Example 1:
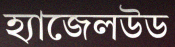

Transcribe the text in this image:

হ্যাজেলউড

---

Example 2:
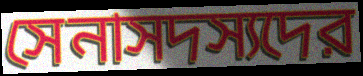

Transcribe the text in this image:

সেনাসদস্যদের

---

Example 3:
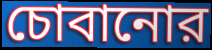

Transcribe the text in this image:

চোবানোর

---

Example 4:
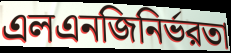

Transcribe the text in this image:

এলএনজিনির্ভরতা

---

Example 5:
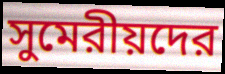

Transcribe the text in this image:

সুমেরীয়দের